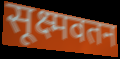
सूक्ष्मवतन